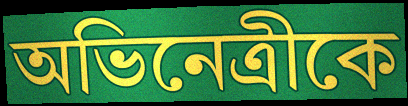
অভিনেত্রীকে